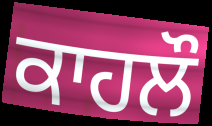
ਕਾਹਲੌ